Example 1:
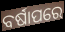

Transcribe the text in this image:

ବର୍ଷାପରେ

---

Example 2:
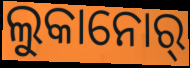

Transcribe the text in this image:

ଲୁକାନୋର୍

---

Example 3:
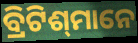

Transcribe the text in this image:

ବ୍ରିଟିଶ୍‌ମାନେ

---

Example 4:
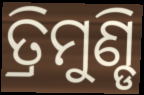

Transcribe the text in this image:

ତ୍ରିମୁଣ୍ଡି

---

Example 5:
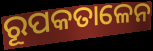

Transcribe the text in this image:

ରୂପକତାଳେନ